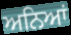
ਅਨਿਆਂ